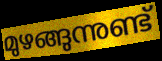
മുഴങ്ങുന്നുണ്ട്